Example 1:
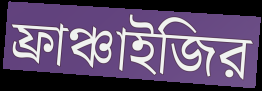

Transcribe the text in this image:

ফ্রাঞ্চাইজির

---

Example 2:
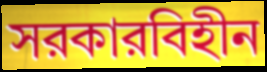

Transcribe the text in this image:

সরকারবিহীন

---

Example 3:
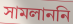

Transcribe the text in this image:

সামলাননি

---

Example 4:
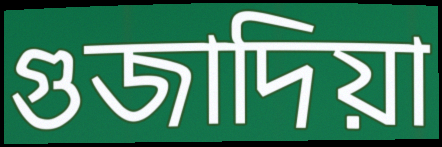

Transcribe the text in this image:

গুজাদিয়া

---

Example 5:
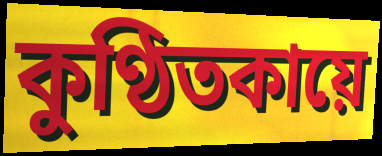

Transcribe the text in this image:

কুণ্ঠিতকায়ে